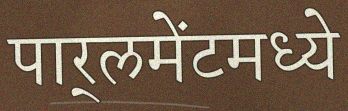
पार्लमेंटमध्ये